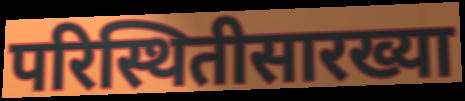
परिस्थितीसारख्या